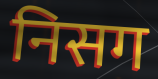
निसग